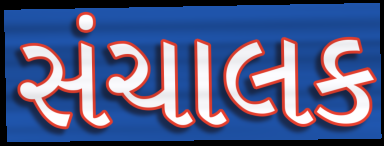
સંચાલક